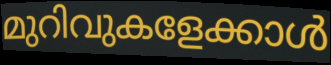
മുറിവുകളേക്കാൾ